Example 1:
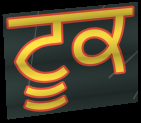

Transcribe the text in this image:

ਟੂਕ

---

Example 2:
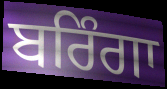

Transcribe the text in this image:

ਬਰਿੰਗਾ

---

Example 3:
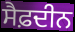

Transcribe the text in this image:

ਸੈਫ਼ਦੀਨ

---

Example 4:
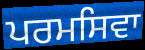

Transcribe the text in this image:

ਪਰਮਸਿਵਾ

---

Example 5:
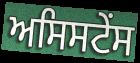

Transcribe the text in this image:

ਅਸਿਸਟੇਂਸ